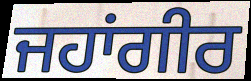
ਜਹਾਂਗੀਰ